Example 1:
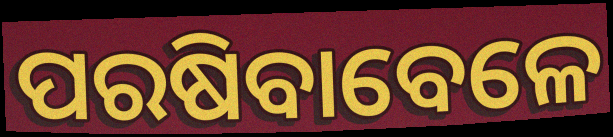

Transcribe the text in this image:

ପରଷିବାବେଳେ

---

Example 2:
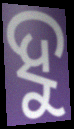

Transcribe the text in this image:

ହୁ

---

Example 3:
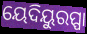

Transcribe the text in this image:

ୟେଦିୟୁରପ୍ପା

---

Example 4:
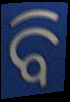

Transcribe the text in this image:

ବି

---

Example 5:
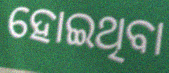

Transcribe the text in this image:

ହୋଇଥିବା